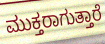
ಮುಕ್ತರಾಗುತ್ತಾರೆ